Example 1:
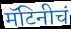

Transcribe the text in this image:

मॅटिनीचं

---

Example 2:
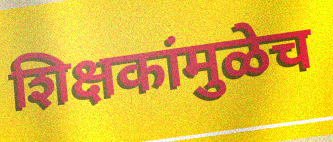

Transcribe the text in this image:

शिक्षकांमुळेच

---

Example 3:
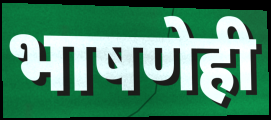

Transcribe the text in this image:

भाषणेही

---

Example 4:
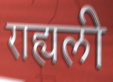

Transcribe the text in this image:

राह्यली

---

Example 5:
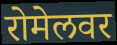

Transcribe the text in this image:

रोमेलवर